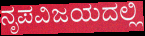
ನೃಪವಿಜಯದಲ್ಲಿ